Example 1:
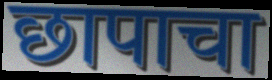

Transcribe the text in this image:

छापाचा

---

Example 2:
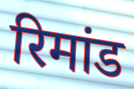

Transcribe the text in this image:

रिमांड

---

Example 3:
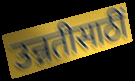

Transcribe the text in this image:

उन्नतीसाठीं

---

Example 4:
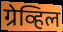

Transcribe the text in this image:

ग्रेव्हिल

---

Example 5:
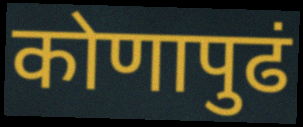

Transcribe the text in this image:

कोणापुढं